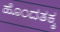
ಹೊಂದತಕ್ಕ